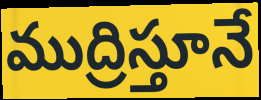
ముద్రిస్తూనే